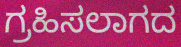
ಗ್ರಹಿಸಲಾಗದ